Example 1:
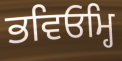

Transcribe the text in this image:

ਭਵਿਓਮ੍ਹਿ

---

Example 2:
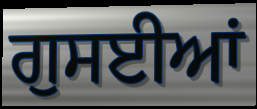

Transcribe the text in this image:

ਗੁਸਈਆਂ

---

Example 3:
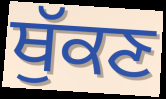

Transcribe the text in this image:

ਥੁੱਕਣ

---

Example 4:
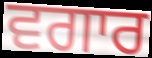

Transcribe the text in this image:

ਵਗਾਰ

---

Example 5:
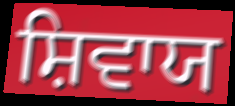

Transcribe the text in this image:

ਸ਼ਿਵਾਯ